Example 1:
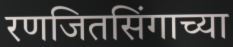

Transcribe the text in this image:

रणजितसिंगाच्या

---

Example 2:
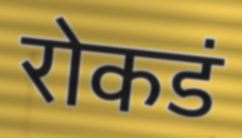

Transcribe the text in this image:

रोकडं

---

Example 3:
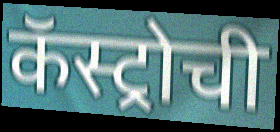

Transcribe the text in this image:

कॅस्ट्रोची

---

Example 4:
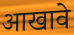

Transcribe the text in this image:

आखावे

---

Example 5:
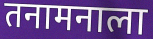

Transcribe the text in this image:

तनामनाला